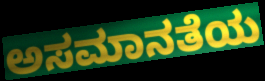
ಅಸಮಾನತೆಯ